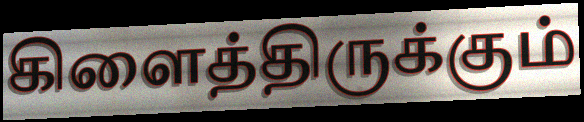
கிளைத்திருக்கும்